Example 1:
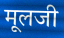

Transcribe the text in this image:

मूलजी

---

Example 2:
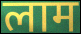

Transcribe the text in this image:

लाम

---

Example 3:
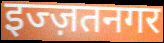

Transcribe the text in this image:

इज्ज़तनगर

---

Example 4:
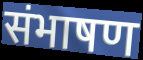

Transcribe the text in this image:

संभाषण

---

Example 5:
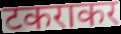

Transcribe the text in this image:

टकराकर